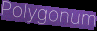
Polygonum